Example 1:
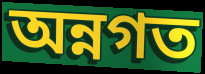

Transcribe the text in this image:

অন্নগত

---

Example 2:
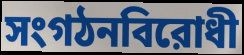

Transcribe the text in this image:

সংগঠনবিরোধী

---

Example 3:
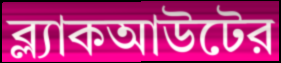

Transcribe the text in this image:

ব্ল্যাকআউটের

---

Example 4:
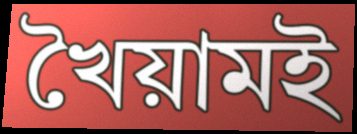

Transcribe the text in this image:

খৈয়ামই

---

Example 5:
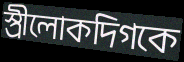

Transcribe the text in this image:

স্ত্রীলোকদিগকে